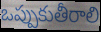
ఒప్పుకుతీరాలి